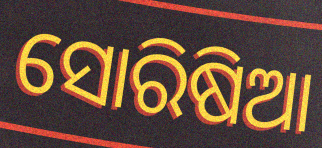
ସୋରିଷିଆ